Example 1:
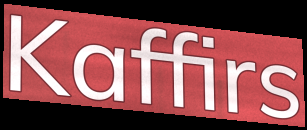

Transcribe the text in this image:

Kaffirs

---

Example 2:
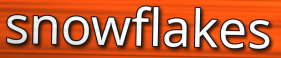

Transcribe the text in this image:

snowflakes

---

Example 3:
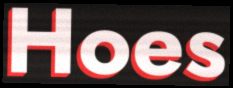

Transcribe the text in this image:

Hoes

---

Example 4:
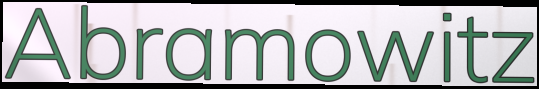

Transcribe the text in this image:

Abramowitz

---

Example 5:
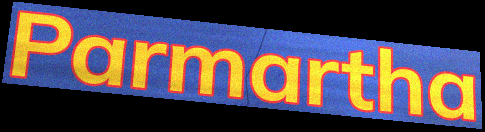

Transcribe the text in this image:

Parmartha